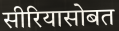
सीरियासोबत